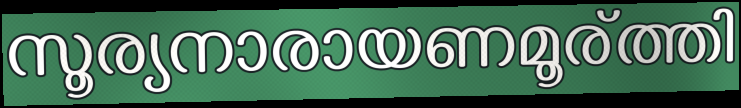
സൂര്യനാരായണമൂര്ത്തി